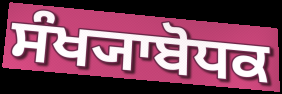
ਸੰਖ੍ਯਾਬੋਧਕ